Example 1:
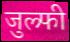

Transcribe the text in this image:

जुल्फी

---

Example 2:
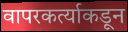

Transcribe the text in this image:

वापरकर्त्याकडून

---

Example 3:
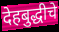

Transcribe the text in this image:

देहबुद्धीचे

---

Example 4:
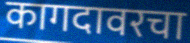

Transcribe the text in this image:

कागदावरचा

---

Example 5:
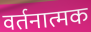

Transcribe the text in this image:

वर्तनात्मक